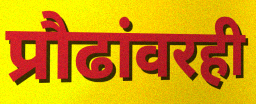
प्रौढांवरही